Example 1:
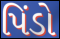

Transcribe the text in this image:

પિંડો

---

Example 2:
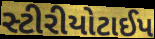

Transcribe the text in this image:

સ્ટીરીયોટાઈપ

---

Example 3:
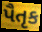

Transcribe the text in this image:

પૈતૃક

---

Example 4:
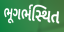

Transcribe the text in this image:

ભૂગર્ભસ્થિત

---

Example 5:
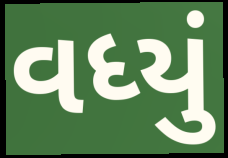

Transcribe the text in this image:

વધ્યું